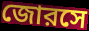
জোরসে